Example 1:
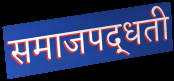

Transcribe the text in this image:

समाजपद्धती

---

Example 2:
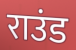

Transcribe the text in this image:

राउंड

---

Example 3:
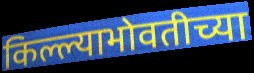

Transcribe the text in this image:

किल्ल्याभोवतीच्या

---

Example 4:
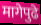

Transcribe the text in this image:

मागेपुढे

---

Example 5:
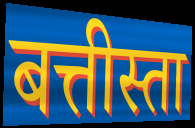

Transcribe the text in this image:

बत्तीस्ता